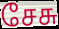
சேசு